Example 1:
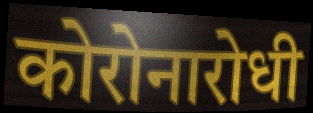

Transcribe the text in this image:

कोरोनारोधी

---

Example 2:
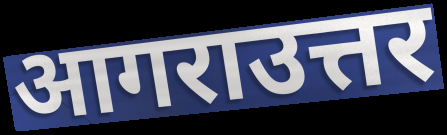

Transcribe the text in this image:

आगराउत्तर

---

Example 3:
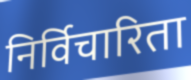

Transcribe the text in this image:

निर्विचारिता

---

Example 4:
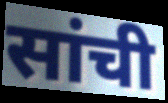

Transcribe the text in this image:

सांची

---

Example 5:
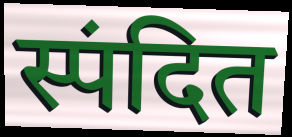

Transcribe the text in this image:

स्पंदित